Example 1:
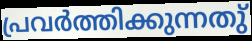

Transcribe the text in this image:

പ്രവർത്തിക്കുന്നതു്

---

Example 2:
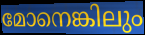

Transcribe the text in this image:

മോനെങ്കിലും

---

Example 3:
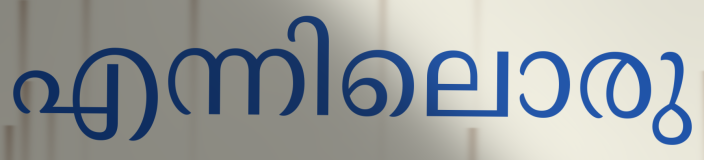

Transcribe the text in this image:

എന്നിലൊരു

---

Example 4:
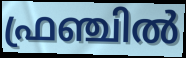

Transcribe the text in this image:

ഫ്രഞ്ചിൽ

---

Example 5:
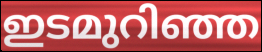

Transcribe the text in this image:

ഇടമുറിഞ്ഞ